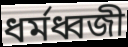
ধর্মধ্বজী